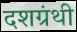
दशग्रंथी